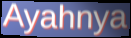
Ayahnya